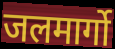
जलमार्गो